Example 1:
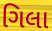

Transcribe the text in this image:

ગિલા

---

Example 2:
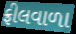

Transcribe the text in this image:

ફ્રીલવાળા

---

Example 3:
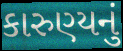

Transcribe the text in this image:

કારુણ્યનું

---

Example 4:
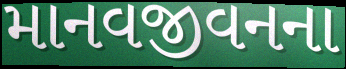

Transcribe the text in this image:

માનવજીવનના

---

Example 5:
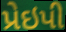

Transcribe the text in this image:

પ્રેઇપી